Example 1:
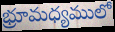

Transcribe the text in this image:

భ్రూమధ్యములో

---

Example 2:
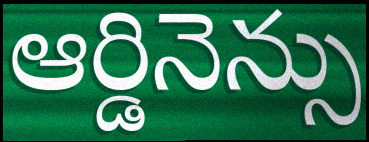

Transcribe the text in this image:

ఆర్డినెన్సు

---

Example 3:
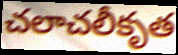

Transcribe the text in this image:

చలాచలీకృత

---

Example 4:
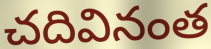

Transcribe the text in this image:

చదివినంత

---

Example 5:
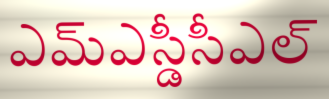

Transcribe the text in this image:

ఎమ్ఎస్డీసీఎల్